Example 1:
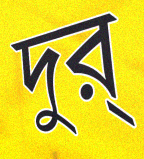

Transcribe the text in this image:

দুর্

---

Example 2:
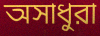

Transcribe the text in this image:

অসাধুরা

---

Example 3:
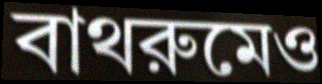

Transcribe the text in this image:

বাথরুমেও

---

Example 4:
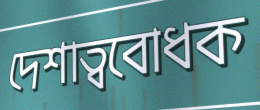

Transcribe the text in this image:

দেশাত্ববোধক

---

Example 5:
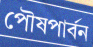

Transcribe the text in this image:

পৌষপার্বন